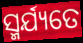
ସ୍ମର୍ଯ୍ୟତେ